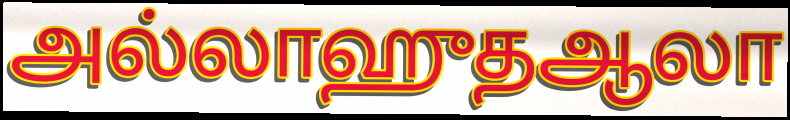
அல்லாஹுதஆலா